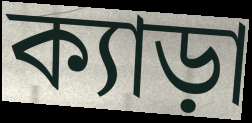
ক্যাড়া